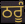
ਠਰੂੰ